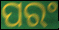
ପରଂ